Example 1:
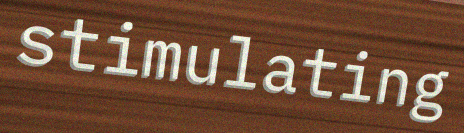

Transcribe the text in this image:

stimulating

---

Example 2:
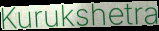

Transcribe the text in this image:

Kurukshetra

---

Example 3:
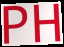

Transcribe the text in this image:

PH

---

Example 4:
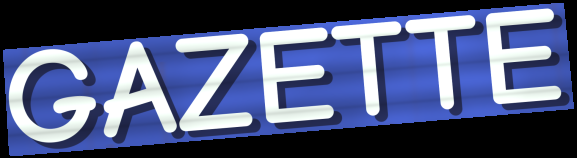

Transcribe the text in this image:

GAZETTE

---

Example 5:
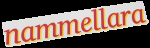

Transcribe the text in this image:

nammellara